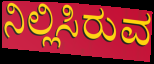
ನಿಲ್ಲಿಸಿರುವ